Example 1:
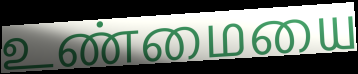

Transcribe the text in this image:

உண்மையை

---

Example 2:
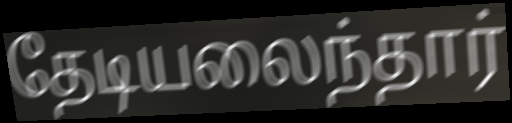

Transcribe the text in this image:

தேடியலைந்தார்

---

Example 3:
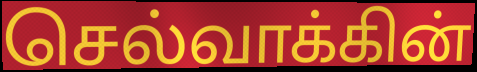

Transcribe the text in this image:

செல்வாக்கின்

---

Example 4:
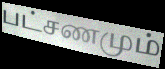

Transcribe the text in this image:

பட்சணமும்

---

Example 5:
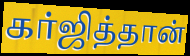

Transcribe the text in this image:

கர்ஜித்தான்